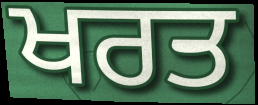
ਖਰਤ